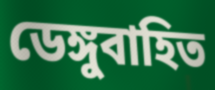
ডেঙ্গুবাহিত